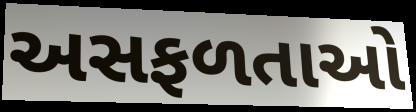
અસફળતાઓ